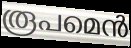
രൂപമെൻ